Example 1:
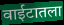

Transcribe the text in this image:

वाईटातला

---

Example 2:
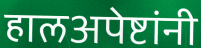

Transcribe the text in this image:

हालअपेष्टांनी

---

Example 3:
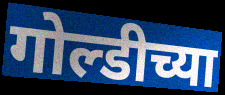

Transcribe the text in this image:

गोल्डीच्या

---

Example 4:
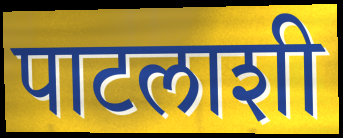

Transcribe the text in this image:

पाटलाशी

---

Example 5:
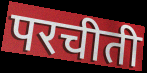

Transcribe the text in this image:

परचीती